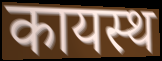
कायस्थ